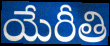
యేరీతి